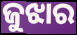
ଜୁଝାର